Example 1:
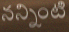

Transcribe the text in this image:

నన్నింటి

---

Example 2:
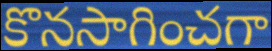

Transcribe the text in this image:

కొనసాగించగా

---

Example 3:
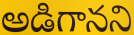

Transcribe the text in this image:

అడిగానని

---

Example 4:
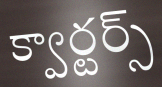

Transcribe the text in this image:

క్వార్టర్స్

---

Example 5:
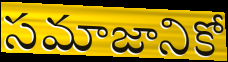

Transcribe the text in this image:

సమాజానికో